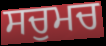
ਸਚੁਮਚ